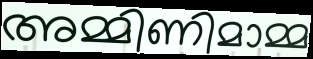
അമ്മിണിമാമ്മ